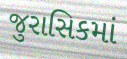
જુરાસિકમાં